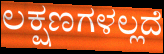
ಲಕ್ಷಣಗಳಲ್ಲದೆ